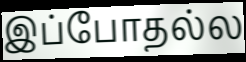
இப்போதல்ல